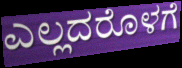
ಎಲ್ಲದರೊಳಗೆ